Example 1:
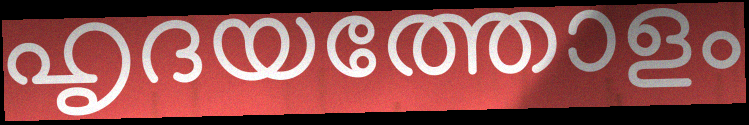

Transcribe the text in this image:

ഹൃദയത്തോളം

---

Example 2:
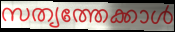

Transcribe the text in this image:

സത്യത്തേക്കാൾ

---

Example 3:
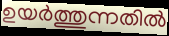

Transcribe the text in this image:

ഉയർത്തുന്നതിൽ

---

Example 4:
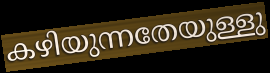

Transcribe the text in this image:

കഴിയുന്നതേയുള്ളു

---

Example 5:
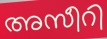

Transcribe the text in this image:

അസീറി